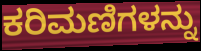
ಕರಿಮಣಿಗಳನ್ನು